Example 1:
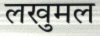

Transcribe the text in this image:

लखुमल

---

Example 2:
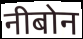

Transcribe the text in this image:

नीबोन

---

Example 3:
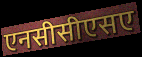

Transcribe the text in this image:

एनसीसीएसए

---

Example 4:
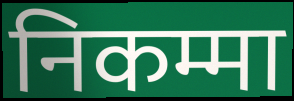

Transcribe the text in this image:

निकम्मा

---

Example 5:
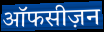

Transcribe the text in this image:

ऑफसीज़न